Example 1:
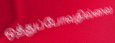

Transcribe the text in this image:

ஒத்துப்போவதில்லை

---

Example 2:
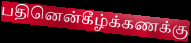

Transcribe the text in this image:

பதினென்கீழ்க்கணக்கு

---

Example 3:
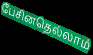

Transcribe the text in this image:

பேசினதெல்லாம்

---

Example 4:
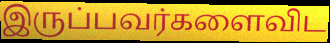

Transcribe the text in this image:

இருப்பவர்களைவிட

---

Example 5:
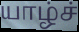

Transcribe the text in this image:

யாழ்ச்